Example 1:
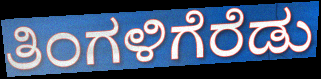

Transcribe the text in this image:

ತಿಂಗಳಿಗೆರೆಡು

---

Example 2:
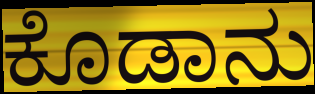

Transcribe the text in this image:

ಕೊಡಾನು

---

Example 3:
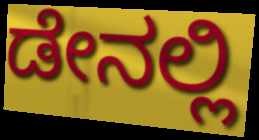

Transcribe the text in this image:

ಡೇನಲ್ಲಿ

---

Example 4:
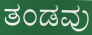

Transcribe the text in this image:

ತಂಡವು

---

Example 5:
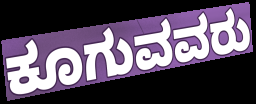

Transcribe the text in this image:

ಕೂಗುವವರು